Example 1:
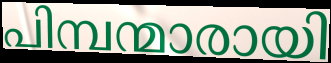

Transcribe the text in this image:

പിമ്പന്മാരായി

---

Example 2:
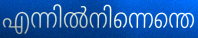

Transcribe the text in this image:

എന്നിൽനിന്നെന്തെ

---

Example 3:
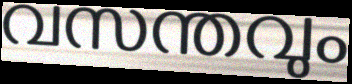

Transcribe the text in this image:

വസന്തവും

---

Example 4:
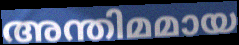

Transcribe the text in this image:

അന്തിമമായ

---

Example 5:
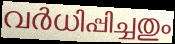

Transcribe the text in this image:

വർധിപ്പിച്ചതും